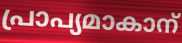
പ്രാപ്യമാകാന്